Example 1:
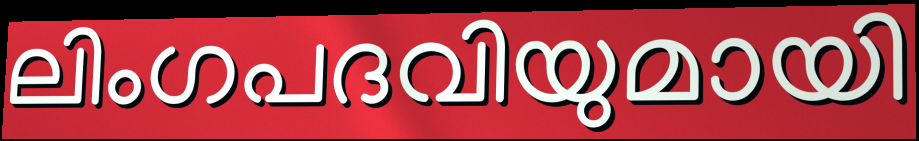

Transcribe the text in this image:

ലിംഗപദവിയുമായി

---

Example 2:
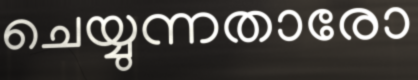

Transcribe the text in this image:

ചെയ്യുന്നതാരോ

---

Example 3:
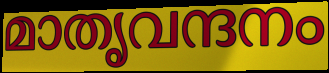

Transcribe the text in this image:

മാതൃവന്ദനം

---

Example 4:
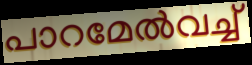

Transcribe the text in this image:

പാറമേൽവച്ച്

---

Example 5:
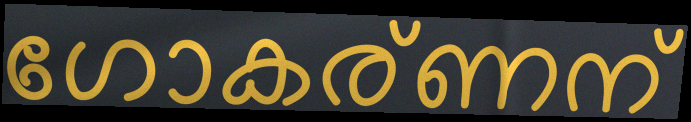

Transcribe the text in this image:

ഗോകര്ണന്